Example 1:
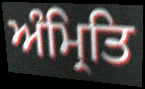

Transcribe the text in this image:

ਅੰਮ੍ਰਿਤਿ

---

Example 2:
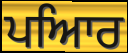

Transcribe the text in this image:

ਪਆਿਰ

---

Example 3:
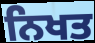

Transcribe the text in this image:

ਨਿਖਤ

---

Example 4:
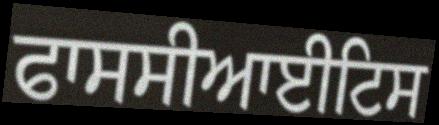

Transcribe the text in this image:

ਫਾਸਸੀਆਈਟਿਸ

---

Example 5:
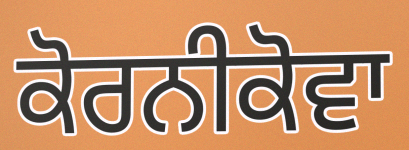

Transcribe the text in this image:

ਕੋਰਨੀਕੋਵਾ